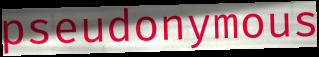
pseudonymous